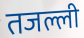
तजल्ली